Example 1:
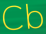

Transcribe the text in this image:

Cb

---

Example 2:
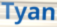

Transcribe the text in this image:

Tyan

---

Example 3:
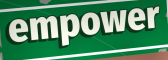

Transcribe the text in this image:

empower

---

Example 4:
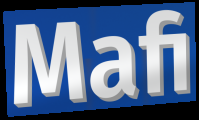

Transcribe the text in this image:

Mafi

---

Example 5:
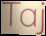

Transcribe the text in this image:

Taj